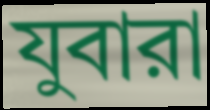
যুবারা